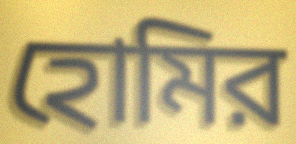
হোমির